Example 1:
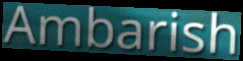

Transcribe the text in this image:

Ambarish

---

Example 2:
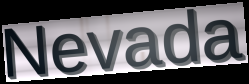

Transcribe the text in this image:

Nevada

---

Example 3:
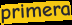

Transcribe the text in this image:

primera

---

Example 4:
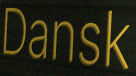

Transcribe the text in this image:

Dansk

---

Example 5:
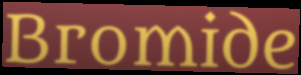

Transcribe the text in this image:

Bromide